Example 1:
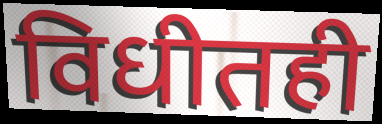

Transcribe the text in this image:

विधीतही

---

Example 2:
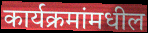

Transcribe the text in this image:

कार्यक्रमांमधील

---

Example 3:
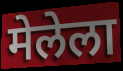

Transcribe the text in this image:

मेलेला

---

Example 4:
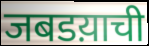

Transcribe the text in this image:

जबडय़ाची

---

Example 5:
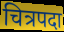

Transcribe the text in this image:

चित्रपदा